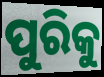
ପୁରିକୁ